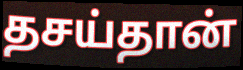
தசய்தான்